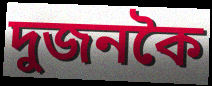
দুজনকৈ